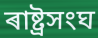
ৰাষ্ট্ৰসংঘ